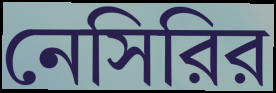
নেসিরির